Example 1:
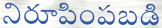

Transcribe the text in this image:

నిరూపింపబడి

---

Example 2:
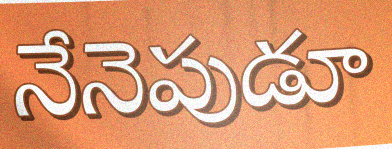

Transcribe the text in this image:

నేనెపుడూ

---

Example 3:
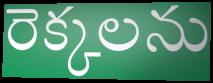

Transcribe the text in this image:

రెక్కలను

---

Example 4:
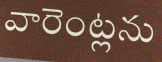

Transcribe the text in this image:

వారెంట్లను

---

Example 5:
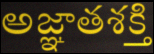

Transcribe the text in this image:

అజ్ఞాతశక్తి